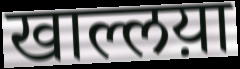
खाल्लय़ा